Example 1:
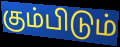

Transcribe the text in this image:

கும்பிடும்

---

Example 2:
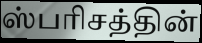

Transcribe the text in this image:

ஸ்பரிசத்தின்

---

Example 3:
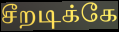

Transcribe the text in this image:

சீறடிக்கே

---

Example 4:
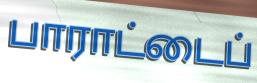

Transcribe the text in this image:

பாராட்டைப்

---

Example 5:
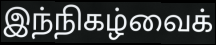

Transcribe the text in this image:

இந்நிகழ்வைக்